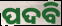
ପଦବି